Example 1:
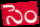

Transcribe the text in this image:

సెం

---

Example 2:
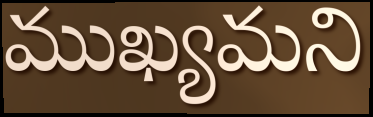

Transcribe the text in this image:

ముఖ్యమని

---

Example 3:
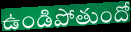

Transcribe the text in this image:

ఉండిపోతుందో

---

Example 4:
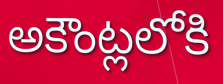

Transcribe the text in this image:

అకౌంట్లలోకి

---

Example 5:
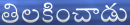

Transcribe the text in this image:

తిలకించాడు